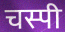
चस्पी